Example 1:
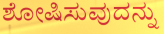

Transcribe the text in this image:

ಶೋಷಿಸುವುದನ್ನು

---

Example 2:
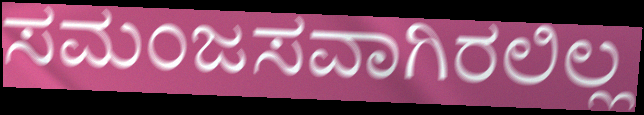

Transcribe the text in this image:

ಸಮಂಜಸವಾಗಿರಲಿಲ್ಲ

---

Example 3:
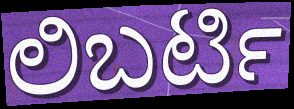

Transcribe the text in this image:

ಲಿಬರ್ಟಿ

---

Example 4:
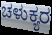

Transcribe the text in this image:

ಚಳುಕ್ಯರ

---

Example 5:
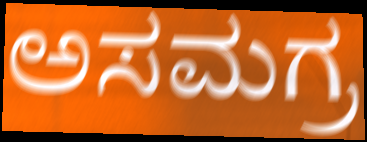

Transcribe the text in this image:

ಅಸಮಗ್ರ